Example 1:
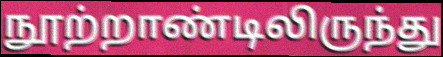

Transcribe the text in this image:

நூற்றாண்டிலிருந்து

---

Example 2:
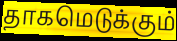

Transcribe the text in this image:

தாகமெடுக்கும்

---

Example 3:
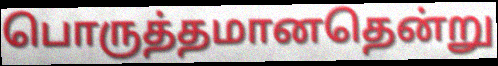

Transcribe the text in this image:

பொருத்தமானதென்று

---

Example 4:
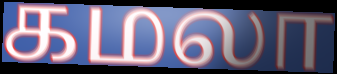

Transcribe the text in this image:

கமலா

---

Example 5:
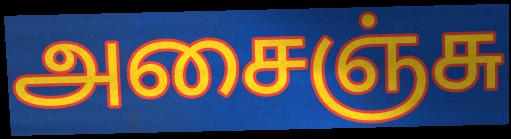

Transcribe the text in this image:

அசைஞ்சு